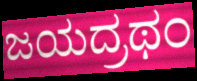
ಜಯದ್ರಥಂ